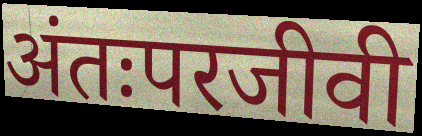
अंतःपरजीवी